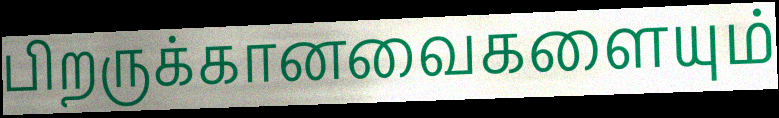
பிறருக்கானவைகளையும்